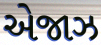
એજાઝ